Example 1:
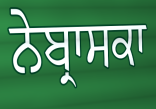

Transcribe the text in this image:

ਨੇਬ੍ਰਾਸਕਾ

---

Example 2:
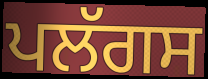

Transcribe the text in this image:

ਪਲੱਗਸ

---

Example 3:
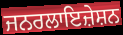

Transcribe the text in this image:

ਜਨਰਲਾਇਜ਼ੇਸ਼ਨ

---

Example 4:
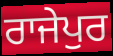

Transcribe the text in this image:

ਰਾਜੇਪੁਰ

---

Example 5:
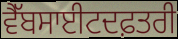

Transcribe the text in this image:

ਵੈੱਬਸਾਈਟਦਫ਼ਤਰੀ